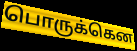
பொருக்கென